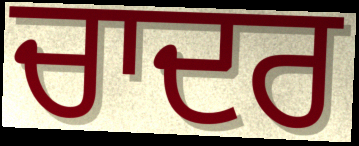
ਚਾਦਰ